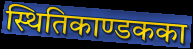
स्थितिकाण्डकका